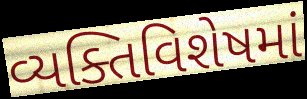
વ્યક્તિવિશેષમાં